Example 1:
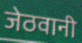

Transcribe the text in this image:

जेठवानी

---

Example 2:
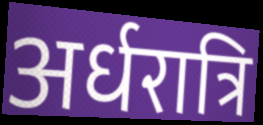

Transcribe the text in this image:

अर्धरात्रि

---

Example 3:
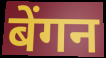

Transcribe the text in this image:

बेंगन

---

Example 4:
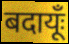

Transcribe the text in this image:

बदायूँः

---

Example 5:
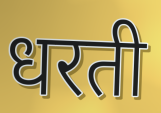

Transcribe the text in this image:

धरती